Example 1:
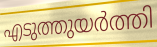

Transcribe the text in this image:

എടുത്തുയർത്തി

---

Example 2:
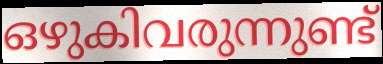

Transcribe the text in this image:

ഒഴുകിവരുന്നുണ്ട്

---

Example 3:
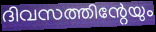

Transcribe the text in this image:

ദിവസത്തിന്റേയും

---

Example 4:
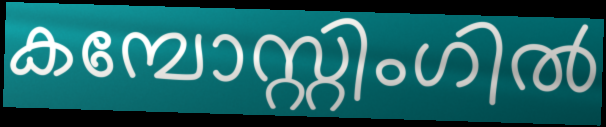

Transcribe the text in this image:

കമ്പോസ്റ്റിംഗിൽ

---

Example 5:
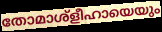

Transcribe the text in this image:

തോമാശ്ളീഹായെയും